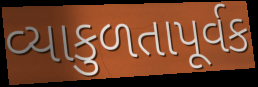
વ્યાકુળતાપૂર્વક